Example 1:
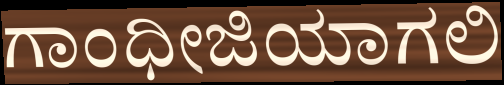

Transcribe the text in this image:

ಗಾಂಧೀಜಿಯಾಗಲಿ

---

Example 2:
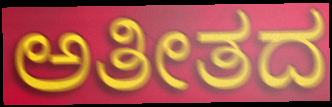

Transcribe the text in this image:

ಅತೀತದ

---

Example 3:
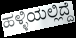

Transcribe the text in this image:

ಹಳ್ಳಿಯಲ್ಲಿದ್ದೆ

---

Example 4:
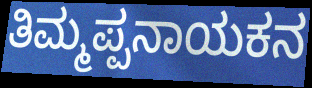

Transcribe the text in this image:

ತಿಮ್ಮಪ್ಪನಾಯಕನ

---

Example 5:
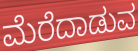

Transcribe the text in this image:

ಮೆರೆದಾಡುವ